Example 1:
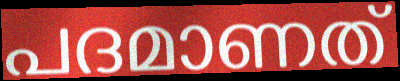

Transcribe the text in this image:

പദമാണത്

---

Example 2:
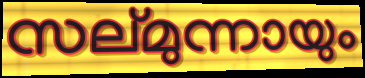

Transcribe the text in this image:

സല്മുന്നായും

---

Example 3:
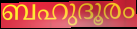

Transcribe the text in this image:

ബഹുദൂരം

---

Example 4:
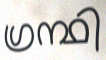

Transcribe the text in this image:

ഗ്രന്ഥി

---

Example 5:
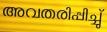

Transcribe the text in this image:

അവതരിപ്പിച്ചു്